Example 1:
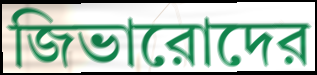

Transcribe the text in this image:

জিভারোদের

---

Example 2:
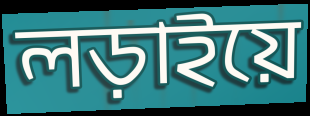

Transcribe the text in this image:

লড়াইয়ে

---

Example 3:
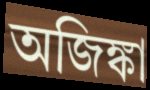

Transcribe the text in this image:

অজিঙ্কা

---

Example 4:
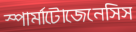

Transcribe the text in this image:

স্পার্মাটোজেনেসিস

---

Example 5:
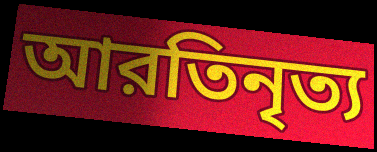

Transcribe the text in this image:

আরতিনৃত্য